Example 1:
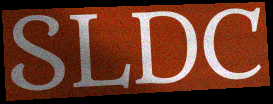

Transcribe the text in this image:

SLDC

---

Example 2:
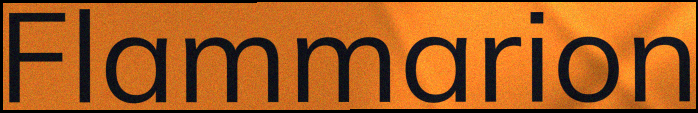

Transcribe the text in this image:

Flammarion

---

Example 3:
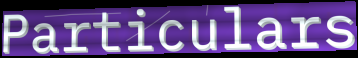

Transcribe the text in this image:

Particulars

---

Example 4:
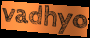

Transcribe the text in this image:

vadhyo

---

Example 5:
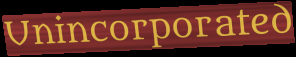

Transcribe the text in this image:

Unincorporated